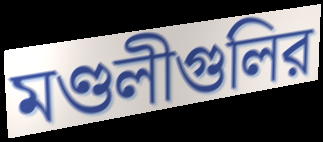
মণ্ডলীগুলির